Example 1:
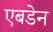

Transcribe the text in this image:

एबडेन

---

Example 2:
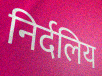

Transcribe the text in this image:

निर्दलिय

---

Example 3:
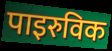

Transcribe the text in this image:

पाइरुविक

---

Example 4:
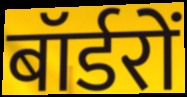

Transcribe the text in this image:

बॉर्डरों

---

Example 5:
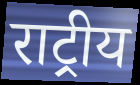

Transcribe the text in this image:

राट्रीय